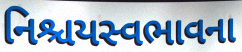
નિશ્ચયસ્વભાવના